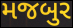
મજબુર